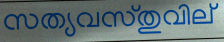
സത്യവസ്തുവില്